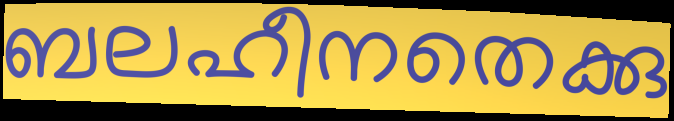
ബലഹീനതെക്കു